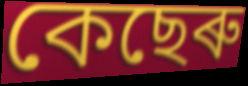
কেছেৰু